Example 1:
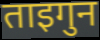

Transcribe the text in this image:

ताइगुन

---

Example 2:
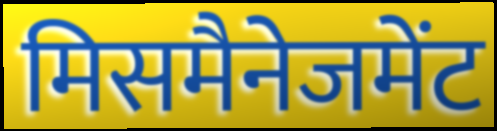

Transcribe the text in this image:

मिसमैनेजमेंट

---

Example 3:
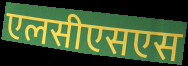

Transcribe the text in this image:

एलसीएसएस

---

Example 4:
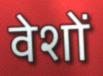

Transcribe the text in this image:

वेशों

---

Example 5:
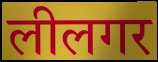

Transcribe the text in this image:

लीलगर